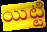
యిట్టి